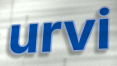
urvi